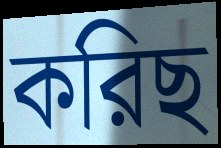
করিছ